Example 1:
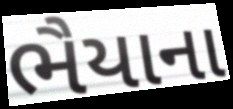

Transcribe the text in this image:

ભૈયાના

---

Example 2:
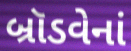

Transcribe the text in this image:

બ્રૉડવેનાં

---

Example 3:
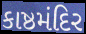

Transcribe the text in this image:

કાષ્ઠમંદિર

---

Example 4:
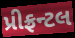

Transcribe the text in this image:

પ્રીફ્રન્ટલ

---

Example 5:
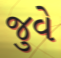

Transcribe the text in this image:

જુવે